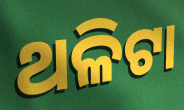
ଥଳିଟା